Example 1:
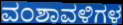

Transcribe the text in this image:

ವಂಶಾವಳಿಗಳ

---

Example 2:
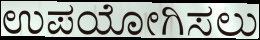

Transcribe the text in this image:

ಉಪಯೋಗಿಸಲು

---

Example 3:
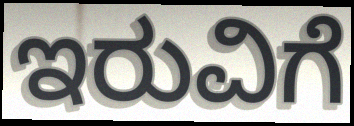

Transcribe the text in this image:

ಇರುವಿಗೆ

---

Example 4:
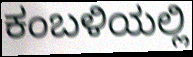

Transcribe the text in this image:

ಕಂಬಳಿಯಲ್ಲಿ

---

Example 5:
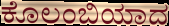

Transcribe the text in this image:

ಕೊಲಂಬಿಯಾದ